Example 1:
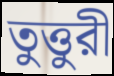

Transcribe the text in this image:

তুত্তুরী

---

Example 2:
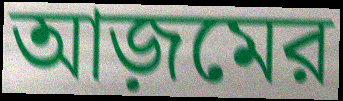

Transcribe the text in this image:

আজ়মের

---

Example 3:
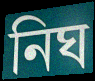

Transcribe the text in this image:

নিঘ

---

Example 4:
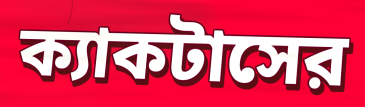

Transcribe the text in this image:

ক্যাকটাসের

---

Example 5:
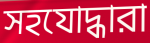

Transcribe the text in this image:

সহযোদ্ধারা